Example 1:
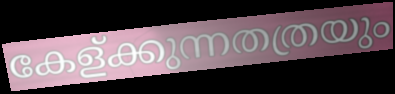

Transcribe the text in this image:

കേള്ക്കുന്നതത്രയും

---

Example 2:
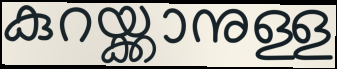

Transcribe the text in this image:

കുറയ്ക്കാനുള്ള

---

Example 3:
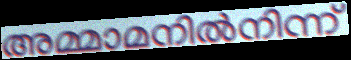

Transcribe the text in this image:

അമ്മാമനിൽനിന്ന്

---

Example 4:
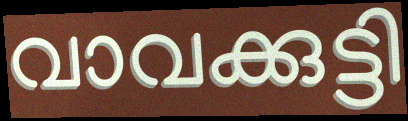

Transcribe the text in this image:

വാവക്കുട്ടി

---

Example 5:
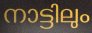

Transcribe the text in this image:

നാട്ടിലും